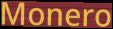
Monero